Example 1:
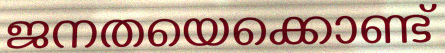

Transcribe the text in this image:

ജനതയെക്കൊണ്ട്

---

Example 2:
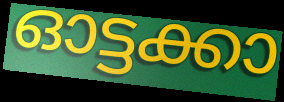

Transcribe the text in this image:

ഓട്ടക്കാ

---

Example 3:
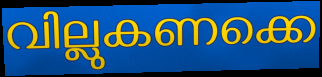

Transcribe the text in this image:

വില്ലുകണക്കെ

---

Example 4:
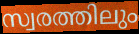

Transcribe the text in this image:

സ്വരത്തിലും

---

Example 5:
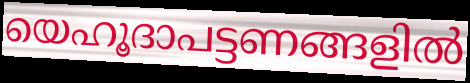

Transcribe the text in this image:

യെഹൂദാപട്ടണങ്ങളിൽ